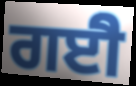
ਗਈੈ